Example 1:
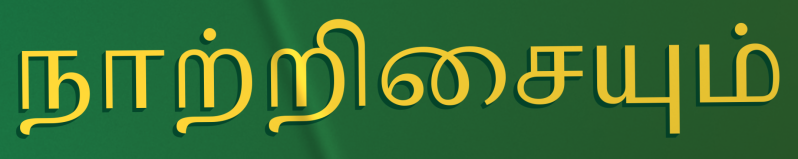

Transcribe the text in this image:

நாற்றிசையும்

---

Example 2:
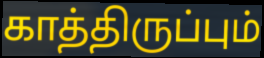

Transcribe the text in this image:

காத்திருப்பும்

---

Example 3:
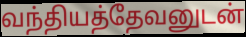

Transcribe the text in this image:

வந்தியத்தேவனுடன்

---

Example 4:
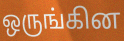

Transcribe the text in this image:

ஒருங்கின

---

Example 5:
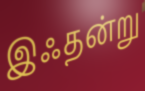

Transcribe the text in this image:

இஃதன்று